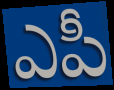
ఎపీ